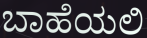
ಬಾಹೆಯಲಿ